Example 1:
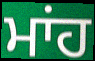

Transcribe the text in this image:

ਮਾਂਹ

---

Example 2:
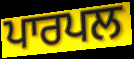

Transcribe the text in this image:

ਪਾਰਪਲ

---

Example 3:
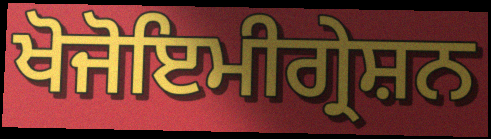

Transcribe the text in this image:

ਖੋਜੋਇਮੀਗ੍ਰੇਸ਼ਨ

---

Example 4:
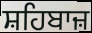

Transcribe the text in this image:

ਸ਼ਹਿਬਾਜ਼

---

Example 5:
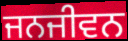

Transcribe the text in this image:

ਜਨਜੀਵਨ